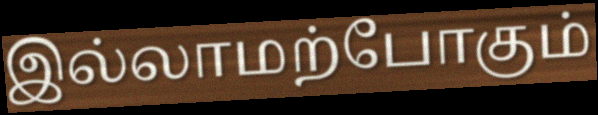
இல்லாமற்போகும்